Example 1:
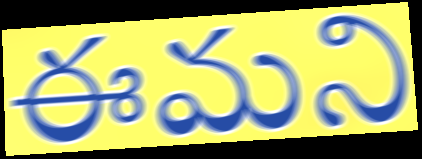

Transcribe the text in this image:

ఈమని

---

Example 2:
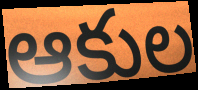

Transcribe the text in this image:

ఆకుల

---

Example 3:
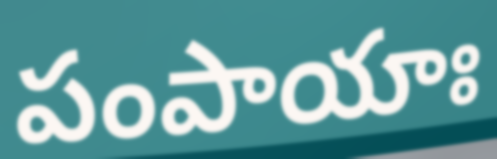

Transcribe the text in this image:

పంపాయాః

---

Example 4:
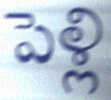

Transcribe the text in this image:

పెళ్లి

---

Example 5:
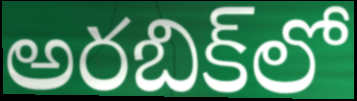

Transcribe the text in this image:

అరబిక్‌లో